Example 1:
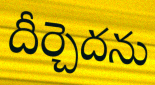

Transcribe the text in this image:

దీర్చెదను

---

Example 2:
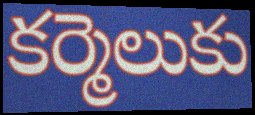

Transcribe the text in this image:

కర్మెలుకు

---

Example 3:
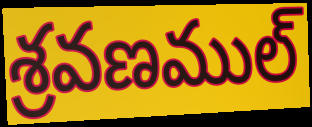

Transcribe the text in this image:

శ్రవణముల్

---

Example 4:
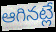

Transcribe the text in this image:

ఆగినట్లే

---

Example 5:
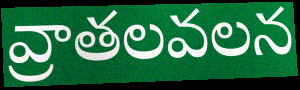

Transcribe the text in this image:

వ్రాతలవలన